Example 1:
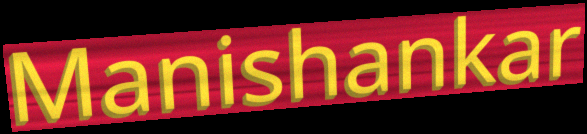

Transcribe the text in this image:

Manishankar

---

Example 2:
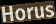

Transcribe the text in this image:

Horus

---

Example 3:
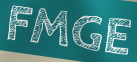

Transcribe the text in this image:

FMGE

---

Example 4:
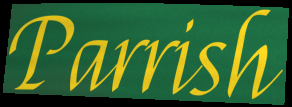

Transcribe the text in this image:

Parrish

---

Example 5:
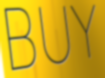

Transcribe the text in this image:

BUY